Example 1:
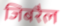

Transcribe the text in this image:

जिबरैल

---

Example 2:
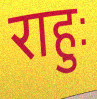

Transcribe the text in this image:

राहुः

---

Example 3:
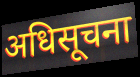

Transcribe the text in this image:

अधिसूचना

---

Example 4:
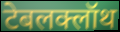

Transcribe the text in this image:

टेबलक्लॉथ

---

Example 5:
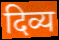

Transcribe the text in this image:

दिव्य